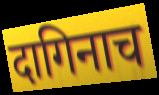
दागिनाच